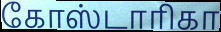
கோஸ்டாரிகா